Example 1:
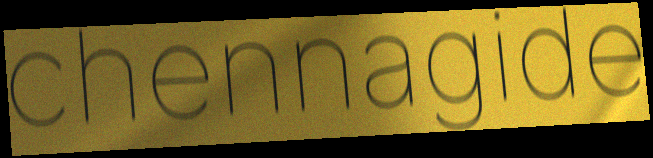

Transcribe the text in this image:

chennagide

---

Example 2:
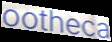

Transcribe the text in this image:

ootheca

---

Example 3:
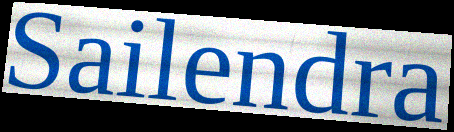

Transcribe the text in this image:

Sailendra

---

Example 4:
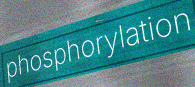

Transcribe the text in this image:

phosphorylation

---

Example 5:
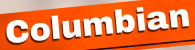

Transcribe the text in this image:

Columbian